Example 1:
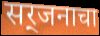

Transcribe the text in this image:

सर्जनाचा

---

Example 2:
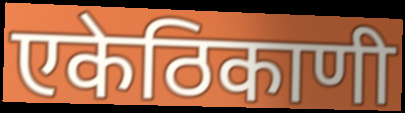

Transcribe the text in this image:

एकेठिकाणी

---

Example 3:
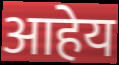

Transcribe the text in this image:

आहेय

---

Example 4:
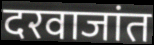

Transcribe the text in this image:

दरवाजांत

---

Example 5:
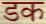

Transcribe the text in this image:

डक